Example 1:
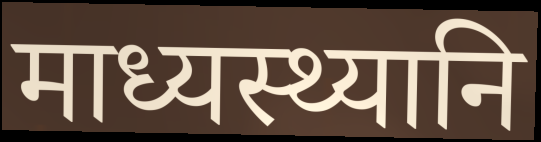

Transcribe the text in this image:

माध्यस्थ्यानि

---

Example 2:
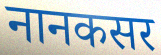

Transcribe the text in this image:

नानकसर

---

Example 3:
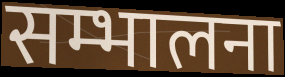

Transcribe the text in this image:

सम्भालना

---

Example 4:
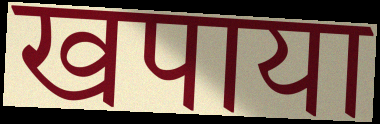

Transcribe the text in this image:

खपाया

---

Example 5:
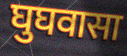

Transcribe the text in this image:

घुघवासा